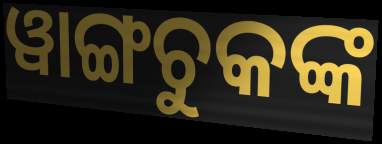
ୱାଙ୍ଗଚୁକଙ୍କ